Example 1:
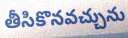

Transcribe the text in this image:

తీసికొనవచ్చును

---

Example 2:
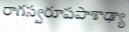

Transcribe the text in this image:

రాగస్వరూపపాశాఢ్యా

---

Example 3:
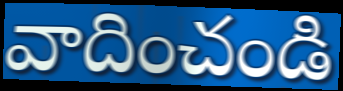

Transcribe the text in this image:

వాదించండి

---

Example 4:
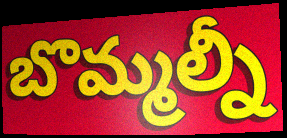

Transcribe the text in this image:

బొమ్మల్నీ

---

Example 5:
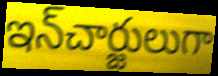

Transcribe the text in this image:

ఇన్‌చార్జులుగా